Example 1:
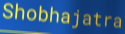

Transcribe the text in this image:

Shobhajatra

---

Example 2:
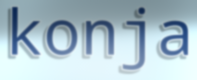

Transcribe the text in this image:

konja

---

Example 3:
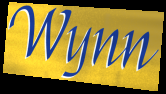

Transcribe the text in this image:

Wynn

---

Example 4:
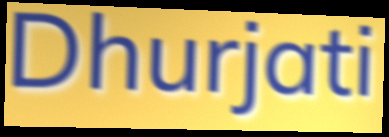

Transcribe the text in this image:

Dhurjati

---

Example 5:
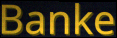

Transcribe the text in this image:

Banke